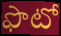
ఫొటో